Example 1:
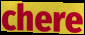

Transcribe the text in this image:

chere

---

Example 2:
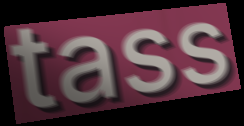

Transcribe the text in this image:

tass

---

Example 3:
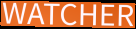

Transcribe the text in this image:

WATCHER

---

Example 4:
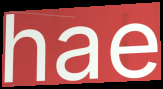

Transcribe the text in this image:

hae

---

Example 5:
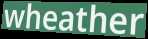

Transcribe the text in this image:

wheather